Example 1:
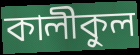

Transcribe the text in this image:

কালীকুল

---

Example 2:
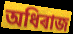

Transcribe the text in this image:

অধিৰাজ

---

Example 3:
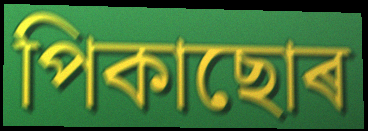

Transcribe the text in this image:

পিকাছোৰ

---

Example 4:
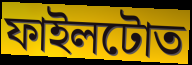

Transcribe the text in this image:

ফাইলটোত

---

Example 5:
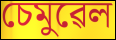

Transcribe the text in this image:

চেমুৱেল